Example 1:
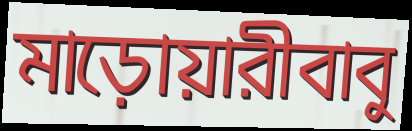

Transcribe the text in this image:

মাড়োয়ারীবাবু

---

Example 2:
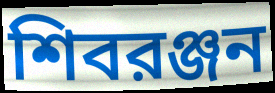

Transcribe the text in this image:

শিবরঞ্জন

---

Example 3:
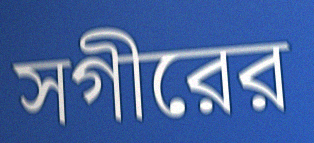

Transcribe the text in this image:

সগীরের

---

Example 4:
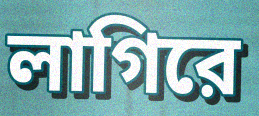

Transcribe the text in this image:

লাগিরে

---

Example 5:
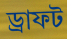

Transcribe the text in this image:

ড্রাফট